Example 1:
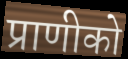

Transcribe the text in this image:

प्राणीको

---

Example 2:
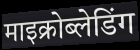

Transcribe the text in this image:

माइक्रोब्लेडिंग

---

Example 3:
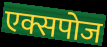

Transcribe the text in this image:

एक्सपोज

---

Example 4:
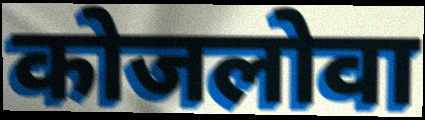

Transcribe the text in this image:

कोजलोवा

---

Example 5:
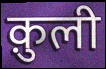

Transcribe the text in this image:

क़ुली